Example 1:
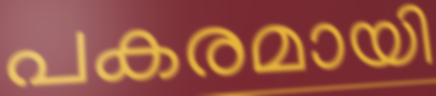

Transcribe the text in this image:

പകരമായി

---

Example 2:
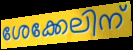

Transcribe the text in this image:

ശേക്കേലിന്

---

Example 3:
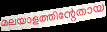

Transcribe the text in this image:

മലയാളത്തിന്റേതായ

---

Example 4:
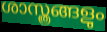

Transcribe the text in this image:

ശാസ്ത്രങ്ങളും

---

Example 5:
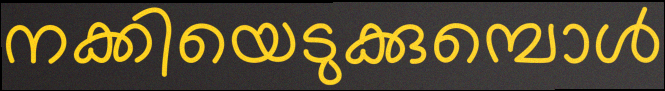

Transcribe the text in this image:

നക്കിയെടുക്കുമ്പൊൾ